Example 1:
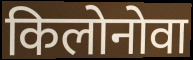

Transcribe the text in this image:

किलोनोवा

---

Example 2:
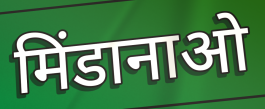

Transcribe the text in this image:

मिंडानाओ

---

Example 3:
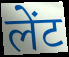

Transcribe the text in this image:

लेंट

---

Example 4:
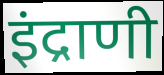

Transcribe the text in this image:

इंद्राणी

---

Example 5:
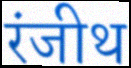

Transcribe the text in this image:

रंजीथ